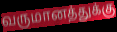
வருமானத்துக்கு